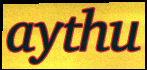
aythu